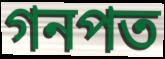
গনপত